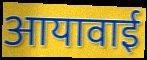
आयावाई